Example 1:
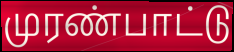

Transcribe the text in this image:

முரண்பாட்டு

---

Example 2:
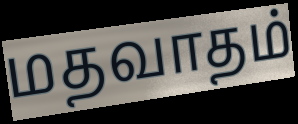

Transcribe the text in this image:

மதவாதம்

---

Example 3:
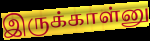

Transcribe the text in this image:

இருக்காள்னு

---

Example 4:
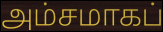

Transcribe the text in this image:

அம்சமாகப்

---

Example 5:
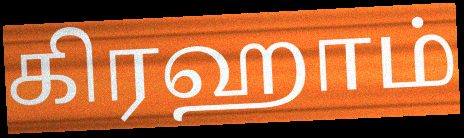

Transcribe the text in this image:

கிரஹாம்